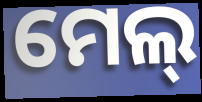
ମେଲ୍